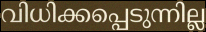
വിധിക്കപ്പെടുന്നില്ല